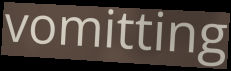
vomitting